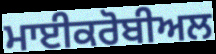
ਮਾਈਕਰੋਬੀਅਲ